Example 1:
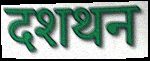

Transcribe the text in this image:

दशथन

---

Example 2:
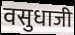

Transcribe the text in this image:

वसुधाजी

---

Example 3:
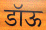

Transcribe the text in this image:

डॉऊ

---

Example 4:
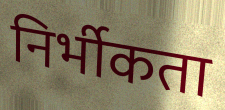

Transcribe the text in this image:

निर्भीकता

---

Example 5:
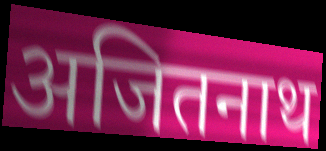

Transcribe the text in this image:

अजितनाथ